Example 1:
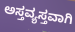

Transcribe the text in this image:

ಅಸ್ತವ್ಯಸ್ತವಾಗಿ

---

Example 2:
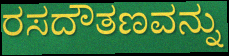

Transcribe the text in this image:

ರಸದೌತಣವನ್ನು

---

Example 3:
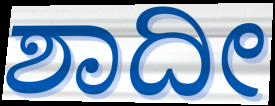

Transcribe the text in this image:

ಶಾದೀ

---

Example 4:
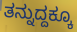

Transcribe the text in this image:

ತನ್ನುದ್ದಕ್ಕೂ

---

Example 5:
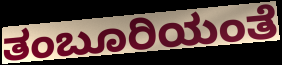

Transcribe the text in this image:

ತಂಬೂರಿಯಂತೆ